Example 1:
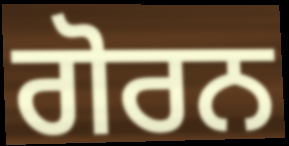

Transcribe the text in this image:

ਗੋਰਨ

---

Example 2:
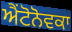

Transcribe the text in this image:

ਐਂਟੋਨੋਵਕਾ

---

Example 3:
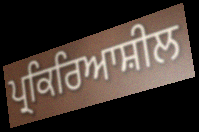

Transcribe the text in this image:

ਪ੍ਰਕਿਰਿਆਸ਼ੀਲ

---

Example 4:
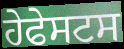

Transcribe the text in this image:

ਹੇਫੇਸਟਸ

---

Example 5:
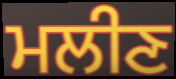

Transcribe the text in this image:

ਮਲੀਣ